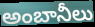
అంబానీలు